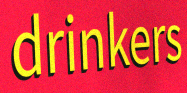
drinkers